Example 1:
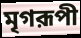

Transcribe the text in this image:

মৃগরূপী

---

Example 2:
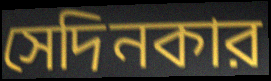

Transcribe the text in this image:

সেদিনকার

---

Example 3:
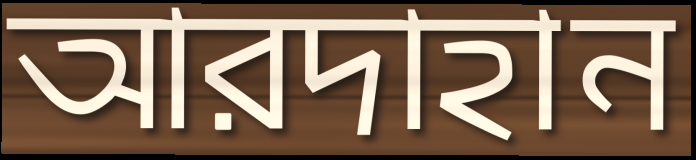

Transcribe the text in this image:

আরদাহান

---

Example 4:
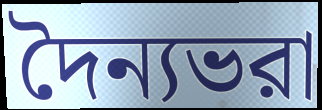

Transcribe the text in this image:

দৈন্যভরা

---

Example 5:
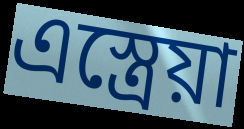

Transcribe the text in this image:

এস্ত্রেয়া